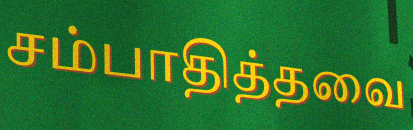
சம்பாதித்தவை